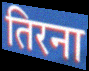
तिरना